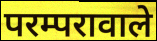
परम्परावाले